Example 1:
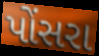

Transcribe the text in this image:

પોંસરા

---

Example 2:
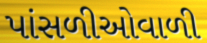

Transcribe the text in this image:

પાંસળીઓવાળી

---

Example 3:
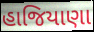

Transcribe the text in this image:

હાજિયાણા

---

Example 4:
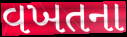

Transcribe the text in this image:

વખતના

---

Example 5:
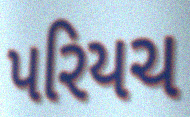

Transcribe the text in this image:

પરિયચ